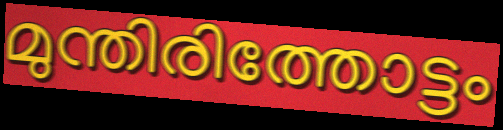
മുന്തിരിത്തോട്ടം